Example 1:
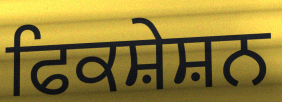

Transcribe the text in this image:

ਫਿਕਸ਼ੇਸ਼ਨ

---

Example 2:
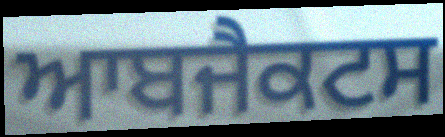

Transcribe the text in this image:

ਆਬਜੈਕਟਸ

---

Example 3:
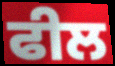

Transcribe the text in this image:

ਫੀਲ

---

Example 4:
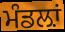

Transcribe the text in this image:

ਮੰਡਲ਼ਾਂ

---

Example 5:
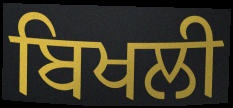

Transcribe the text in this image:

ਬਿਖਲੀ